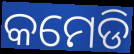
କମେଡି